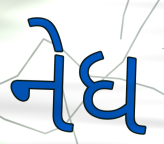
નેધ